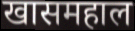
खासमहाल